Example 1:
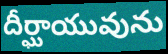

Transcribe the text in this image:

దీర్ఘాయువును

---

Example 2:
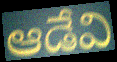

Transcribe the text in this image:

ఆడేవి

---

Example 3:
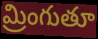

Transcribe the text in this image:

మ్రింగుతూ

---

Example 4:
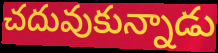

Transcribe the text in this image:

చదువుకున్నాడు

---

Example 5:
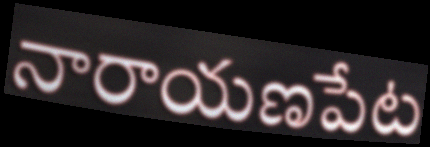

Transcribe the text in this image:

నారాయణపేట